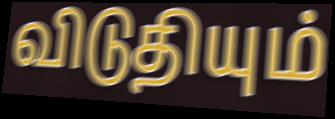
விடுதியும்